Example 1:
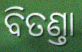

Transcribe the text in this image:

ବିତଣ୍ତା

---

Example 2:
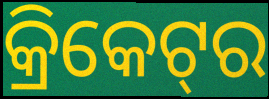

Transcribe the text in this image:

କ୍ରିକେଟ୍‌ର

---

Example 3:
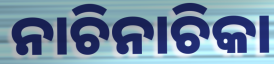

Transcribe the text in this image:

ନାଚିନାଚିକା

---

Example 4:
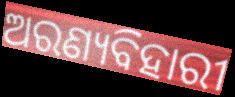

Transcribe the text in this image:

ଅରଣ୍ୟବିହାରୀ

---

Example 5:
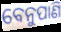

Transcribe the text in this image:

ବେନୁପାଣି